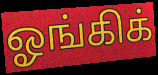
ஓங்கிக்